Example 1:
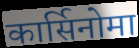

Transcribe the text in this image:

कार्सिनोमा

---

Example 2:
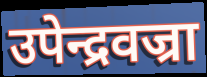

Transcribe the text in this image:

उपेन्द्रवज्रा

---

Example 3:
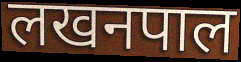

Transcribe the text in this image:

लखनपाल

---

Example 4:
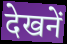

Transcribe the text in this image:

देखनें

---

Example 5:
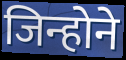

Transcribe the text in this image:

जिन्‍होने